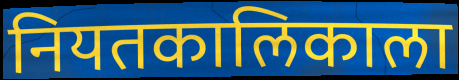
नियतकालिकाला